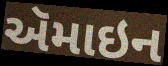
ઍમાઇન